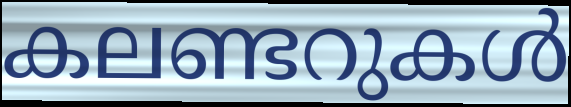
കലണ്ടറുകൾ